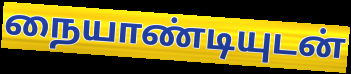
நையாண்டியுடன்